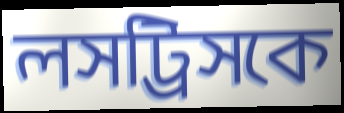
লসট্রিসকে